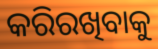
କରିରଖିବାକୁ